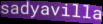
sadyavilla